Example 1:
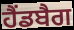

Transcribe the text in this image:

ਹੈਂਡਬੈਗ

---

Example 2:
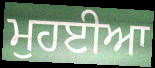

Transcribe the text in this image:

ਮੁਹਈਆ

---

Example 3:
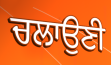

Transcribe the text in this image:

ਚਲਾਉਣੀ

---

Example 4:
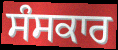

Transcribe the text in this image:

ਸੰਸਕਾਰ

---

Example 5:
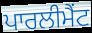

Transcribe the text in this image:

ਪਾਰਲੀਮੈਂਟ